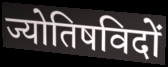
ज्योतिषविदों